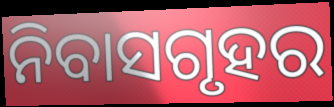
ନିବାସଗୃହର